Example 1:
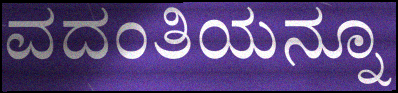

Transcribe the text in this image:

ವದಂತಿಯನ್ನೂ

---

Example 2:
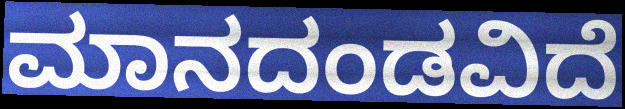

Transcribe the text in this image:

ಮಾನದಂಡವಿದೆ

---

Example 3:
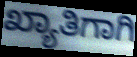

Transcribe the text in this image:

ಖ್ಯಾತಿಗಾಗಿ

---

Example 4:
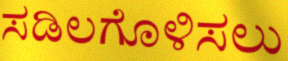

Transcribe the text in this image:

ಸಡಿಲಗೊಳಿಸಲು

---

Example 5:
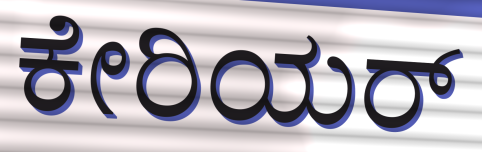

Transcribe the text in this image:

ಕೇರಿಯರ್